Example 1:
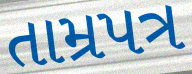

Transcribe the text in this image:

તામ્રપત્ર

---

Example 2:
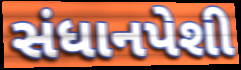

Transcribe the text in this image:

સંધાનપેશી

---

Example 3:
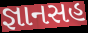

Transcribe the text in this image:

જ્ઞાનસહ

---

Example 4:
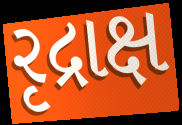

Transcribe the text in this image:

રૃદ્રાક્ષ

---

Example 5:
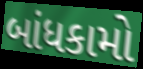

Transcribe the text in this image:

બાંધકામો